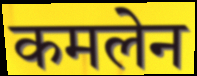
कमलेन